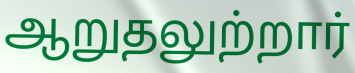
ஆறுதலுற்றார்